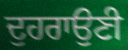
ਦੁਹਰਾਉਣੀ